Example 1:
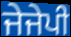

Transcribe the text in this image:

ਜੇਜੇਪੀ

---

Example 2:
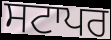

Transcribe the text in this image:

ਸਟਾਪਰ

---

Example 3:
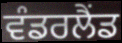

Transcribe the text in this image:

ਵੰਡਰਲੈਂਡ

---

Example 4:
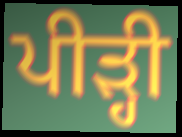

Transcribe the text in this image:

ਪੀੜ੍ਹੀ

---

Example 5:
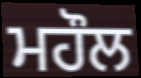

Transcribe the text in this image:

ਮਹੌਲ